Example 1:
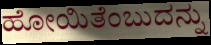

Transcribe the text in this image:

ಹೋಯಿತೆಂಬುದನ್ನು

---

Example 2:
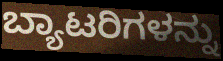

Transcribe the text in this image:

ಬ್ಯಾಟರಿಗಳನ್ನು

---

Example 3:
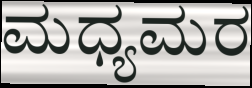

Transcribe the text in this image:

ಮಧ್ಯಮರ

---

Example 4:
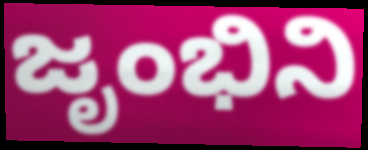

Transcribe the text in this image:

ಜೃಂಭಿನಿ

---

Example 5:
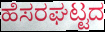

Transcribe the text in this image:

ಹೆಸರಘಟ್ಟದ